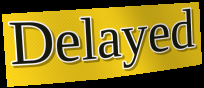
Delayed